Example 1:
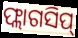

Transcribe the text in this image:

ଫ୍ଲାଗସିପ୍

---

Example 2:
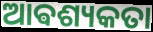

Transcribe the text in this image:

ଆଵଶ୍ୟକତା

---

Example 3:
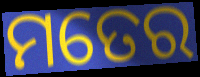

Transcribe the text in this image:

ମତେର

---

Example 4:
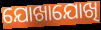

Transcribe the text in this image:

ଯୋଖାଯୋଖି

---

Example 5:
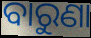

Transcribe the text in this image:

ବାରୁଣା